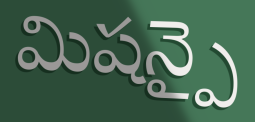
మిషన్పై